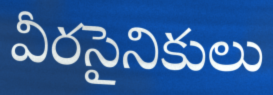
వీరసైనికులు